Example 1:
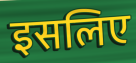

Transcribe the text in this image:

इसलिए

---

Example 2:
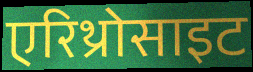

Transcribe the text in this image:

एरिथ्रोसाइट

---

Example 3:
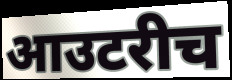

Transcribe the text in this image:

आउटरीच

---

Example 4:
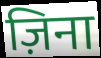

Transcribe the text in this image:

ज़िना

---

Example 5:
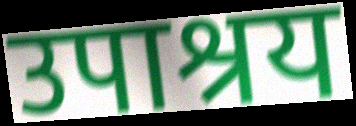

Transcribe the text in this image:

उपाश्रय